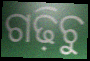
ଗଢ଼ିଚୁ